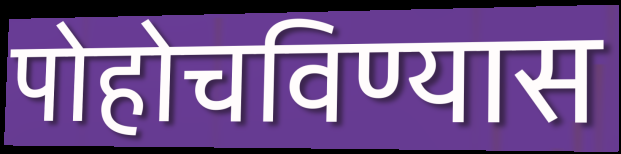
पोहोचविण्यास